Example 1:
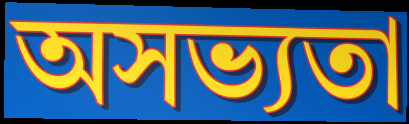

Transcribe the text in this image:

অসভ্যতা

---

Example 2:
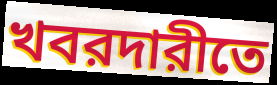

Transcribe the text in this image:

খবরদারীতে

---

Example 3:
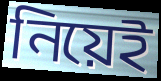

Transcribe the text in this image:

নিয়েই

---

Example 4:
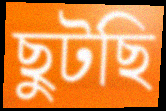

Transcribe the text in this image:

ছুটছি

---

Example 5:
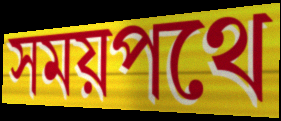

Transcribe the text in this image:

সময়পথে